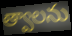
త్వాలను